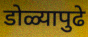
डोळ्यापुढे